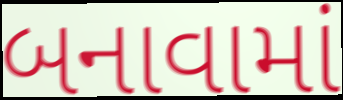
બનાવામાં